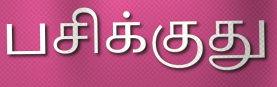
பசிக்குது